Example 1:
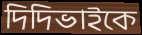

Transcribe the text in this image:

দিদিভাইকে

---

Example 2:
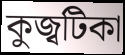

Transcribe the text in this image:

কুজ্বটিকা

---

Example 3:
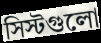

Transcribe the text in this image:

সিস্টগুলো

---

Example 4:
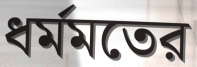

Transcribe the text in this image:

ধর্মমতের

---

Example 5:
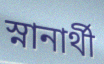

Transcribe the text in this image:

স্নানার্থী